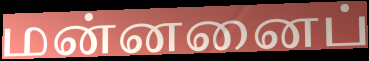
மன்னனைப்